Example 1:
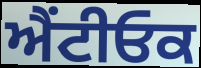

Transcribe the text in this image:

ਐਂਟੀਓਕ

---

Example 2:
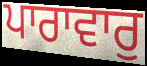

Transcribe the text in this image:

ਪਾਰਾਵਾਰੁ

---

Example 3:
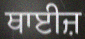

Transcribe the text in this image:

ਥਾਈਜ਼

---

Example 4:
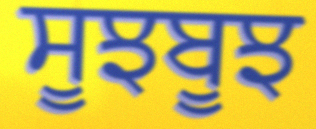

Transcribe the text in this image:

ਸੂਝਬੂਝ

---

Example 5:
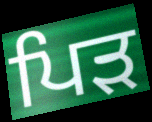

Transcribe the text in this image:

ਪਿੜ